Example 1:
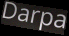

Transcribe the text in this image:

Darpa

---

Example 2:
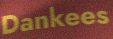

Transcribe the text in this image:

Dankees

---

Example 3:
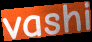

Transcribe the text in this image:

vashi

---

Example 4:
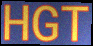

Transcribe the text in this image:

HGT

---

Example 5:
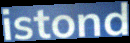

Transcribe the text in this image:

istond